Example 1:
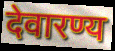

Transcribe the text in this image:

देवारण्य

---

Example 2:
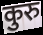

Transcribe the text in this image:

कुरु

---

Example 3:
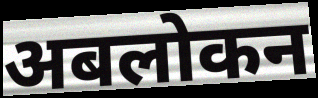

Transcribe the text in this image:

अबलोकन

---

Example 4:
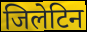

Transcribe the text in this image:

जिलेटिन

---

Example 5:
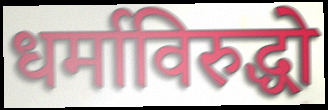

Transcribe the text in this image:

धर्माविरुद्धो